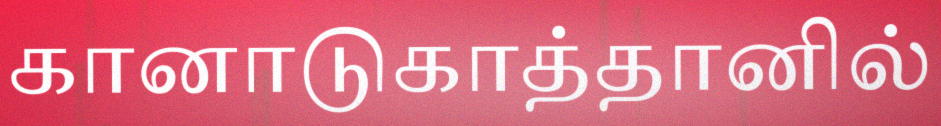
கானாடுகாத்தானில்